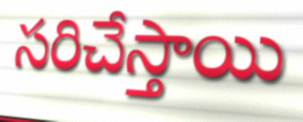
సరిచేస్తాయి